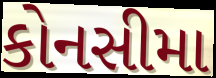
કોનસીમા